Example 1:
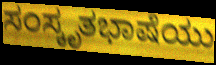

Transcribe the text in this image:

ಸಂಸ್ಕೃತಭಾಷೆಯು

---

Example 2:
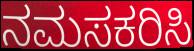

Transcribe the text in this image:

ನಮಸಕರಿಸಿ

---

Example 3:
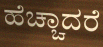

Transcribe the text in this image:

ಹೆಚ್ಚಾದರೆ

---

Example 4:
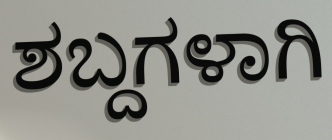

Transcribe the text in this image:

ಶಬ್ದಗಳಾಗಿ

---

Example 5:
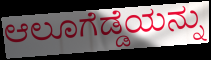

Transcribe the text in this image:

ಆಲೂಗೆಡ್ಡೆಯನ್ನು